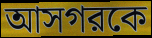
আসগরকে